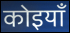
कोइयाँ